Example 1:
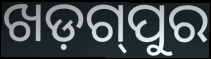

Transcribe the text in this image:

ଖଡ଼ଗ୍‌ପୁର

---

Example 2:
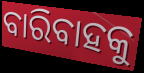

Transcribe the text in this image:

ବାରିବାହକୁ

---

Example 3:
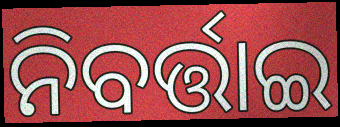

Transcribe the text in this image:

ନିବର୍ତ୍ତାଇ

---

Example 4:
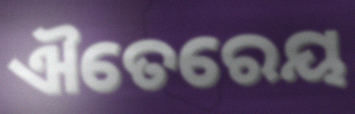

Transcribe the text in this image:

ଐତେରେୟ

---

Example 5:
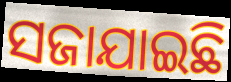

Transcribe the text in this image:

ସଜାଯାଇଛି